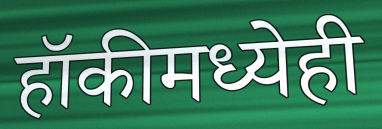
हॉकीमध्येही